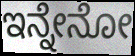
ಇನ್ನೇನೋ